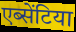
एब्सेंटिया